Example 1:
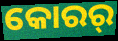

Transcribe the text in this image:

କୋରର୍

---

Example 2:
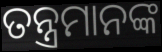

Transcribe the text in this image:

ତନ୍ତ୍ରମାନଙ୍କ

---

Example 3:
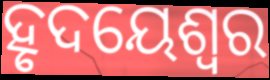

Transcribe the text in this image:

ହୃଦୟେଶ୍ୱର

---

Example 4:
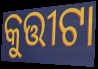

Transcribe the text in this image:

କୁତ୍ତୀଟା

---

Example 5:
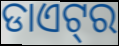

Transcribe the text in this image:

ଡାଏଟ୍‌ର